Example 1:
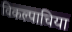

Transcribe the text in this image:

विकल्पाचिया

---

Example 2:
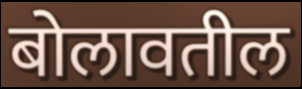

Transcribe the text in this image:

बोलावतील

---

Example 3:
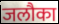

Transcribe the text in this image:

जलौका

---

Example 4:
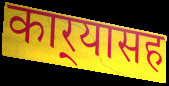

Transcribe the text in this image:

कार्यासह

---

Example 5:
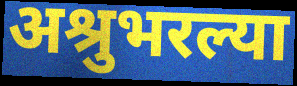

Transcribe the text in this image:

अश्रुभरल्या